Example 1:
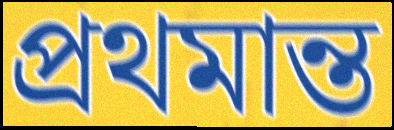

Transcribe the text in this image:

প্ৰথমান্ত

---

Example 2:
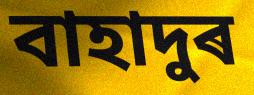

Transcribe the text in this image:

বাহাদুৰ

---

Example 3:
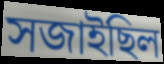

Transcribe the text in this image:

সজাইছিল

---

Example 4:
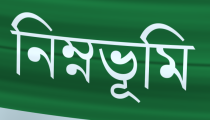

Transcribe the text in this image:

নিম্নভূমি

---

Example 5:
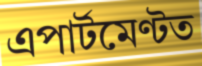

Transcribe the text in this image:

এপাৰ্টমেণ্টত